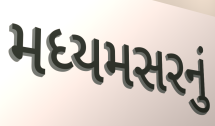
મધ્યમસરનું